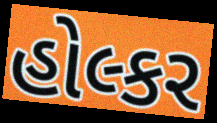
હોલ્કર